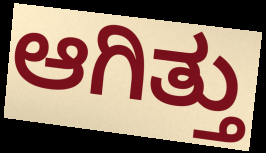
ಆಗಿತ್ತು